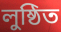
লুষ্ঠিত